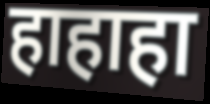
हाहाहा